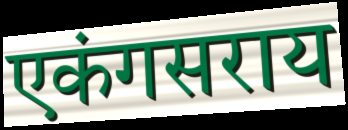
एकंगसराय